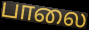
பாலை